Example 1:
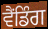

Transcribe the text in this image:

ਵੈਂਡਿੰਗ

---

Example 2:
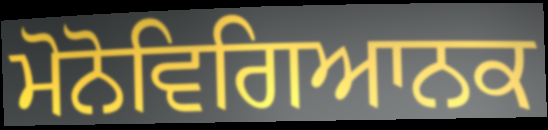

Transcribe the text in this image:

ਮੋਨੋਵਿਗਿਆਨਕ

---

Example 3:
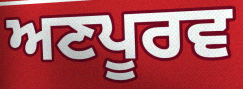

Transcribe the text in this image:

ਅਣਪੂਰਵ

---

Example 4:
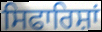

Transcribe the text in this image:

ਸਿਫਾਰਿਸ਼ਾਂ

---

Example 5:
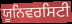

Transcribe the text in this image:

ਯੂਨਿਵਰਸਿਟੀ